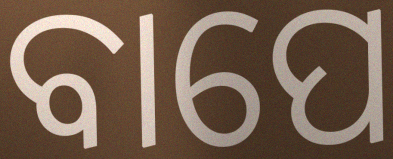
ବାପେ